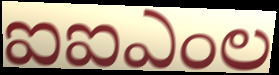
ఐఐఎంల